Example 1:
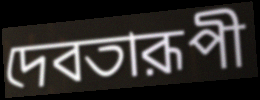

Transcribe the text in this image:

দেবতারূপী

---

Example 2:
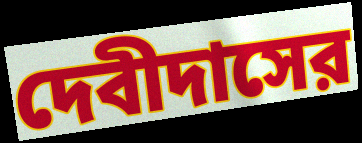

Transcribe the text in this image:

দেবীদাসের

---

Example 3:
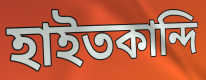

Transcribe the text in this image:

হাইতকান্দি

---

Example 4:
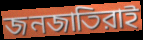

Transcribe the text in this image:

জনজাতিরাই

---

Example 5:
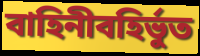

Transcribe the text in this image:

বাহিনীবহির্ভুত